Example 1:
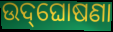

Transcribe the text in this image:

ଉଦ୍‌ଘୋଷଣା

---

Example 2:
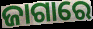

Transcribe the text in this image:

ଜାଗାରେ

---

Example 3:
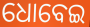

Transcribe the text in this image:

ଧୋବେଇ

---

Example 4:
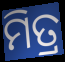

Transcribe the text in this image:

ମିତ୍ର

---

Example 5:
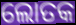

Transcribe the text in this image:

ଲୋତକ